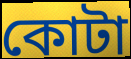
কোটা